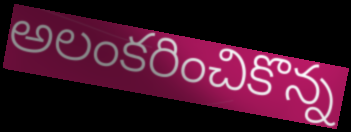
అలంకరించికొన్న